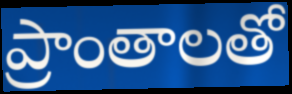
ప్రాంతాలతో